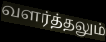
வளர்த்தலும்